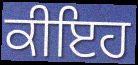
ਕੀਇਹ